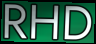
RHD